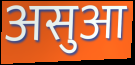
असुआ